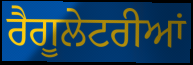
ਰੈਗੂਲੇਟਰੀਆਂ